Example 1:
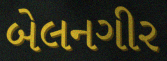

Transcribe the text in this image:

બેલનગીર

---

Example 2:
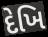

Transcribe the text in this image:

દેખિ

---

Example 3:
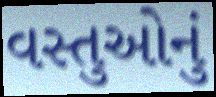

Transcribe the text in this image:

વસ્તુઓનું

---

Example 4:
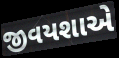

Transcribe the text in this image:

જીવયશાએ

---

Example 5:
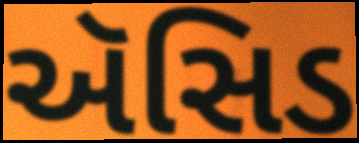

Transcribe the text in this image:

ઍસિડ